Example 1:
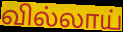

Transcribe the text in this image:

வில்லாய்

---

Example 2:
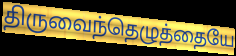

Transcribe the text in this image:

திருவைந்தெழுத்தையே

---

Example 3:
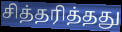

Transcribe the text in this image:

சித்தரித்தது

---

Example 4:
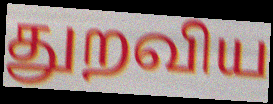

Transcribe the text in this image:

துறவிய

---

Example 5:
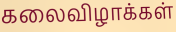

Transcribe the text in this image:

கலைவிழாக்கள்